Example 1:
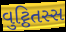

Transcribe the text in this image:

વુટ્ઠિતસ્સ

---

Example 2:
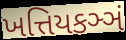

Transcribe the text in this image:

ખત્તિયકઞ્ઞં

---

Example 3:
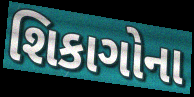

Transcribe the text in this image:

શિકાગોના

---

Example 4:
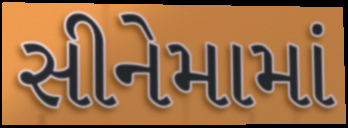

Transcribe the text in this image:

સીનેમામાં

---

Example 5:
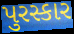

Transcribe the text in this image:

પુરસ્કાર